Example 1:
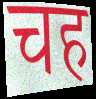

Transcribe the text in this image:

चह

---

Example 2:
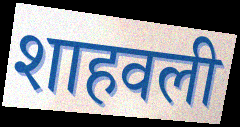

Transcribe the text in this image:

शाहवली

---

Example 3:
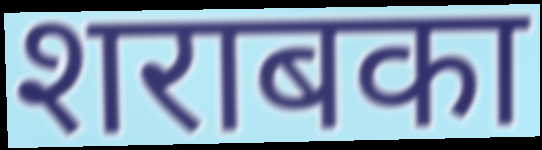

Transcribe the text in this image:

शराबका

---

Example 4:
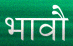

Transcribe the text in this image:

भावौ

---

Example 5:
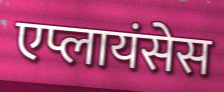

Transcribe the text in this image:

एप्लायंसेस